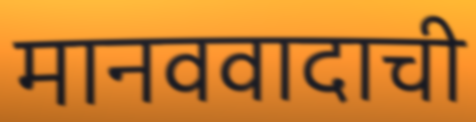
मानववादाची